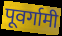
पूवर्गामी